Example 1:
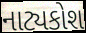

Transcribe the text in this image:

નાટ્યકોશ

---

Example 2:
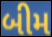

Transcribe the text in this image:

બીમ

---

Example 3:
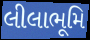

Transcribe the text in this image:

લીલાભૂમિ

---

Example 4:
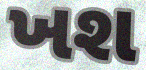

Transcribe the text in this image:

ખશ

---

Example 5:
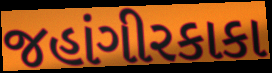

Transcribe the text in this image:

જહાંગીરકાકા